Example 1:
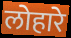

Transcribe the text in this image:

लोहारे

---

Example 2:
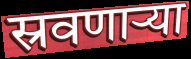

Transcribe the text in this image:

स्रवणाऱ्या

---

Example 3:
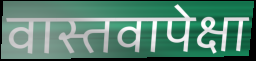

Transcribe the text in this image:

वास्तवापेक्षा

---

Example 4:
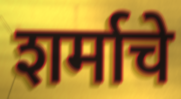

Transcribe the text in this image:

शर्माचे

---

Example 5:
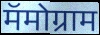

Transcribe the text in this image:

मॅमोग्राम